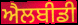
ਐਲਬੀਡੀ